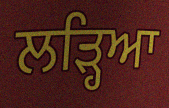
ਲੜ੍ਹਿਆ